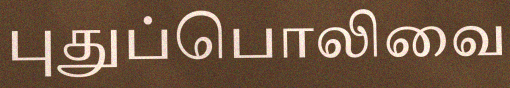
புதுப்பொலிவை